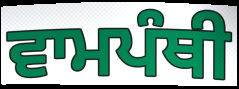
ਵਾਮਪੰਥੀ